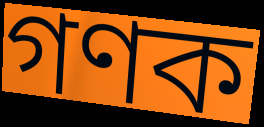
গণক